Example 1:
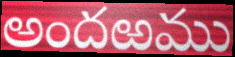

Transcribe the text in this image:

అందఱము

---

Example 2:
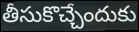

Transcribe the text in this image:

తీసుకొచ్చేందుకు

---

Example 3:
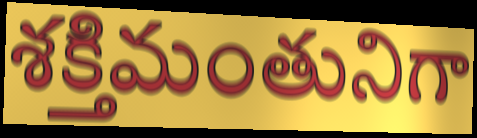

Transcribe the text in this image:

శక్తిమంతునిగా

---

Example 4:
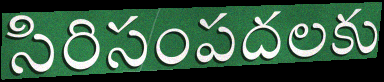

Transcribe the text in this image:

సిరిసంపదలకు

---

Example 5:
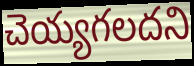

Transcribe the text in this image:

చెయ్యగలదని